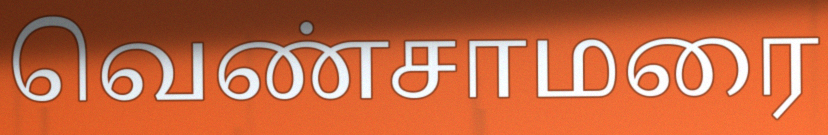
வெண்சாமரை